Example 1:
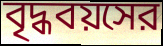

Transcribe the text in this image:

বৃদ্ধবয়সের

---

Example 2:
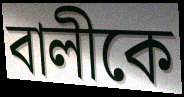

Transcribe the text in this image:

বালীকে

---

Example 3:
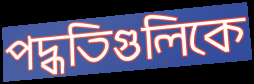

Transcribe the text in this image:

পদ্ধতিগুলিকে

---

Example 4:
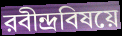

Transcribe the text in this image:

রবীন্দ্রবিষয়ে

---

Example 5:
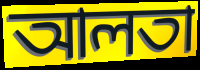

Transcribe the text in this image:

আলতা